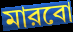
মারবো